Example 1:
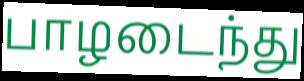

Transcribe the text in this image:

பாழடைந்து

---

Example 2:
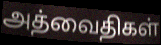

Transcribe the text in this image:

அத்வைதிகள்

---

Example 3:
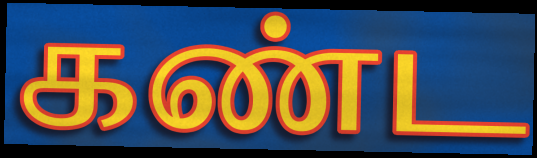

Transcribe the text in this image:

கண்ட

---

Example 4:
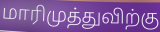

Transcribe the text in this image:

மாரிமுத்துவிற்கு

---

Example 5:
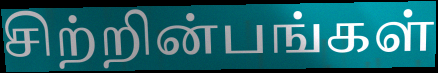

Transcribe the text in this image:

சிற்றின்பங்கள்